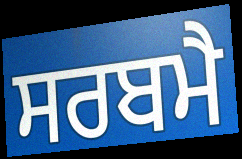
ਸਰਬਮੈ